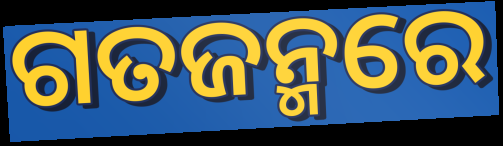
ଗତଜନ୍ମରେ